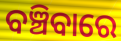
ବଞ୍ଚିବାରେ